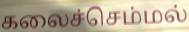
கலைச்செம்மல்